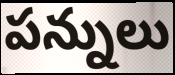
పన్నులు